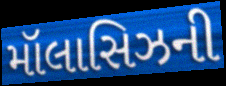
મૉલાસિઝની